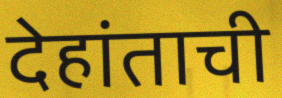
देहांताची